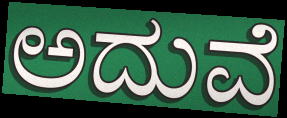
ಅದುವೆ